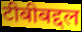
टीबीबद्दल